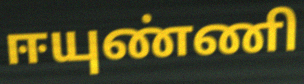
ஈயுண்ணி